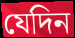
যেদিন